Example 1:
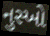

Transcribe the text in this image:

નુસ્ખો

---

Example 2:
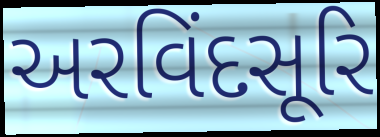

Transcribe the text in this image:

અરવિંદસૂરિ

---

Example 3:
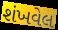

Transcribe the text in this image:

શંખવેલ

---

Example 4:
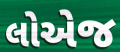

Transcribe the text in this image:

લોએજ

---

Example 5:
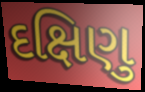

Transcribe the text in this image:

દક્ષિણુ